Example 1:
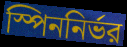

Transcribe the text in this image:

স্পিননির্ভর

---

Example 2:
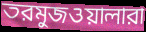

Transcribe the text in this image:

তরমুজওয়ালারা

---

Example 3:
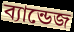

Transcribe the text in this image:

ব্যান্ডেজ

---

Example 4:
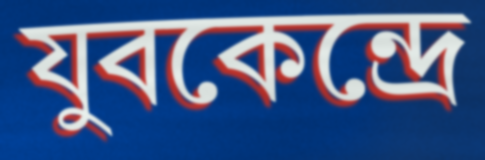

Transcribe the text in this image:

যুবকেন্দ্রে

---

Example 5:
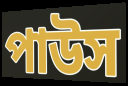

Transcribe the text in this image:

পাউস